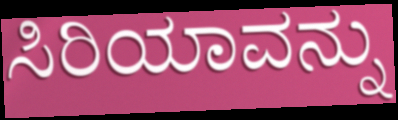
ಸಿರಿಯಾವನ್ನು